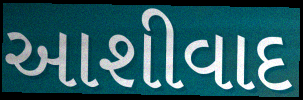
આશીવાદ